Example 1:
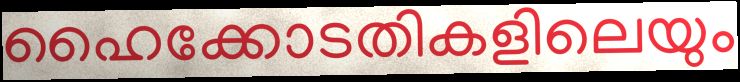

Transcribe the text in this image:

ഹൈക്കോടതികളിലെയും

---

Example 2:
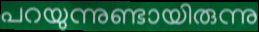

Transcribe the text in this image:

പറയുന്നുണ്ടായിരുന്നു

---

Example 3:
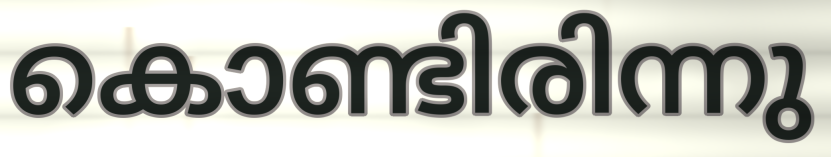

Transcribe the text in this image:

കൊണ്ടിരിന്നു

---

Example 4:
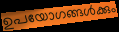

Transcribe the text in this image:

ഉപയോഗങ്ങൾക്കും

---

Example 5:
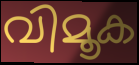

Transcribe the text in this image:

വിമൂക